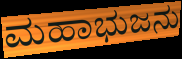
ಮಹಾಭುಜನು